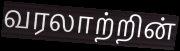
வரலாற்றின்